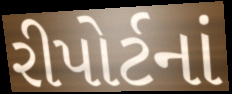
રીપોર્ટનાં